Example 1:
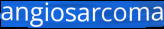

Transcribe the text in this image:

angiosarcoma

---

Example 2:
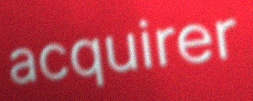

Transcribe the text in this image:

acquirer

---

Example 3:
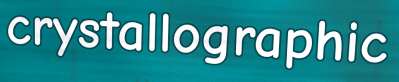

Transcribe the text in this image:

crystallographic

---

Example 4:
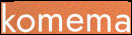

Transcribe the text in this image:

komema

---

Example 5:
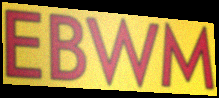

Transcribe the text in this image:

EBWM